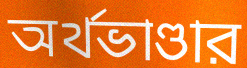
অর্থভাণ্ডার